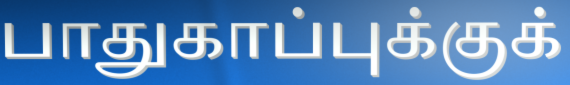
பாதுகாப்புக்குக்